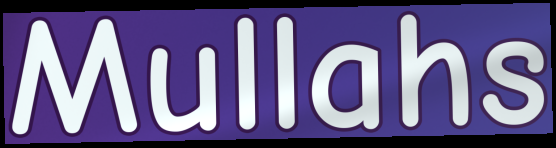
Mullahs